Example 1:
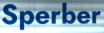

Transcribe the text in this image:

Sperber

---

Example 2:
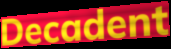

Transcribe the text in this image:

Decadent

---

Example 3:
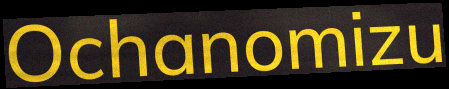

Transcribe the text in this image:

Ochanomizu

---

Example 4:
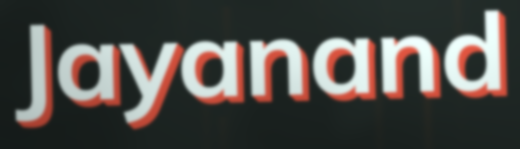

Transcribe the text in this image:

Jayanand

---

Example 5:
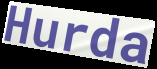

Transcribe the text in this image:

Hurda